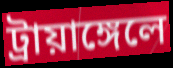
ট্রায়াঙ্গেলে